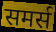
समर्स